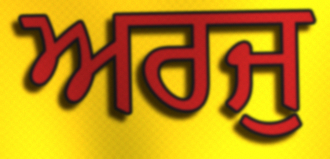
ਅਰਜੁ